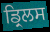
ਡ੍ਰਿਲਸ